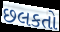
છલકતો